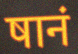
षानं